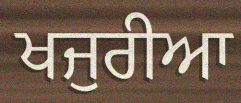
ਖਜੁਰੀਆ